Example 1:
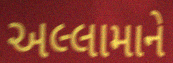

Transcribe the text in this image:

અલ્લામાને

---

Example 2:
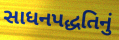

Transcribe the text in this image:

સાધનપદ્ધતિનું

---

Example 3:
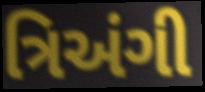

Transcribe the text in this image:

ત્રિઅંગી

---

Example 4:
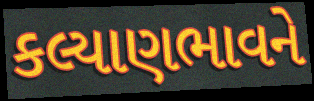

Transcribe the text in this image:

કલ્યાણભાવને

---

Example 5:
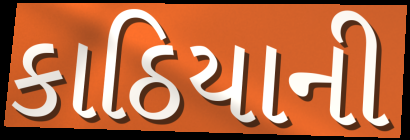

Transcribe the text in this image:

કાઠિયાની